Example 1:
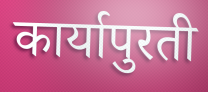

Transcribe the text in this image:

कार्यापुरती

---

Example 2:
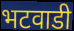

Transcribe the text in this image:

भटवाडी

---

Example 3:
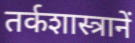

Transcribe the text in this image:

तर्कशास्त्रानें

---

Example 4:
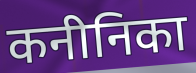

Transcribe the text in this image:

कनीनिका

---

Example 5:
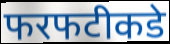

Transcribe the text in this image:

फरफटीकडे